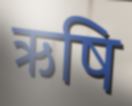
ऋषि